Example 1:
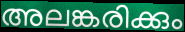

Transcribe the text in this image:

അലങ്കരിക്കും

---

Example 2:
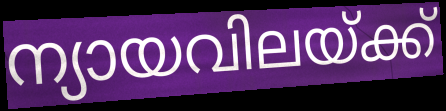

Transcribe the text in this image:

ന്യായവിലയ്ക്ക്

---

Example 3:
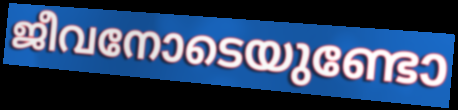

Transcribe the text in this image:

ജീവനോടെയുണ്ടോ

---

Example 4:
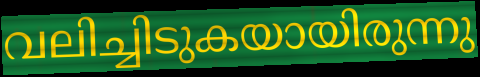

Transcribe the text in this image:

വലിച്ചിടുകയായിരുന്നു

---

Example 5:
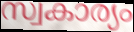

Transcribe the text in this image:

സ്വകാര്യം